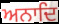
ਅਨਾਦਿ